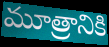
మూత్రానికి